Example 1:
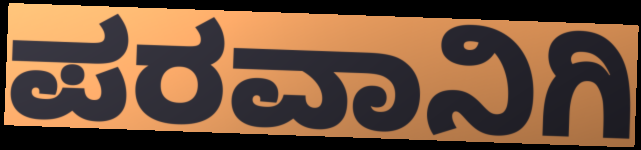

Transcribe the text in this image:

ಪರವಾನಿಗಿ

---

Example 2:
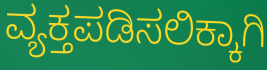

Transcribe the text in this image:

ವ್ಯಕ್ತಪಡಿಸಲಿಕ್ಕಾಗಿ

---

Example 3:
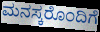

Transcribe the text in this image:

ಮನಸ್ಕರೊಂದಿಗೆ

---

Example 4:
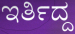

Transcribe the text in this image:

ಇರ್ತಿದ್ದ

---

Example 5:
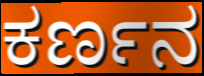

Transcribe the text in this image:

ಕರ್ಣನ